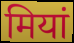
मियां